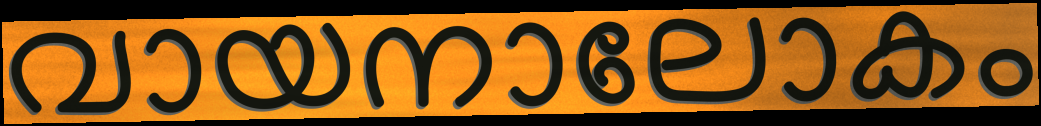
വായനാലോകം